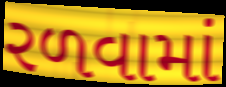
રળવામાં